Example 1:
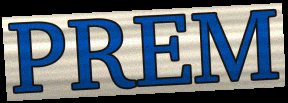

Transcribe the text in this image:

PREM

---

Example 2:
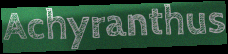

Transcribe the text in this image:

Achyranthus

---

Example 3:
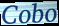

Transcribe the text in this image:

Cobo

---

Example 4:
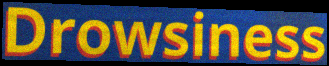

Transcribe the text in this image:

Drowsiness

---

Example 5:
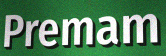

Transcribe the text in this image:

Premam